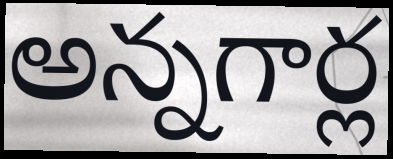
అన్నగార్ల